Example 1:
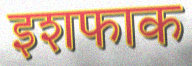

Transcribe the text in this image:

इशफाक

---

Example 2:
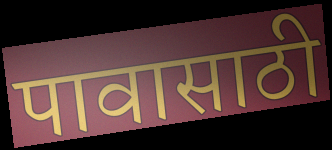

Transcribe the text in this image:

पावासाठी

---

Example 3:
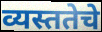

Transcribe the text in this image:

व्यस्ततेचे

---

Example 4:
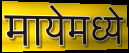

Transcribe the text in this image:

मायेमध्ये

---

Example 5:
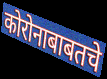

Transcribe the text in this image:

कोरोनाबाबतचे